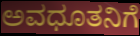
ಅವಧೂತನಿಗೆ